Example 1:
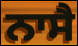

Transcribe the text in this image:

ਨਾਸੈ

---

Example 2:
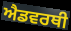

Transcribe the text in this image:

ਐਡਵਰਥੀ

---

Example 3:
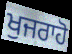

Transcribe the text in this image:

ਖੁਜਰਾਹੋ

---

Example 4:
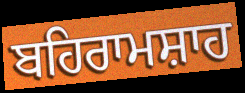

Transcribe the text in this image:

ਬਹਿਰਾਮਸ਼ਾਹ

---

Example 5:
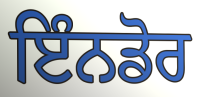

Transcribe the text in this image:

ਇੰਨਡੋਰ